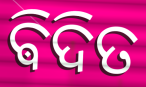
ଵିଦିତ